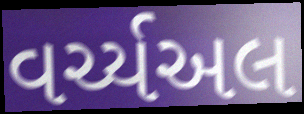
વર્ચ્યઅલ